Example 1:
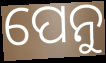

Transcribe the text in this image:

ପେନୁ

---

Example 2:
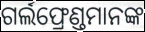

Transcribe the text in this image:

ଗର୍ଲଫ୍ରେଣ୍ଡମାନଙ୍କ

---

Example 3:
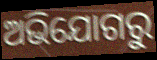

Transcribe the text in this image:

ଅଭିଯୋଗରୁ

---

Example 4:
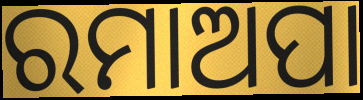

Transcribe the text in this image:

ରମାଅପା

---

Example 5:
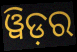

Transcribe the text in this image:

ୱିଡ଼ର